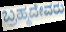
ಬ್ರಹ್ಮದೇವರು